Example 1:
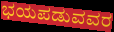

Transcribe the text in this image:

ಭಯಪಡುವವರ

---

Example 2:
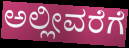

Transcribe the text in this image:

ಅಲ್ಲೀವರೆಗೆ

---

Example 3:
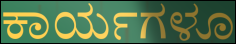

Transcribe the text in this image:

ಕಾರ್ಯಗಳೂ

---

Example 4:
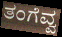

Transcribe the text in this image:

ತಂಗೆವ್ವ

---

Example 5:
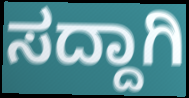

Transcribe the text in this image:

ಸದ್ದಾಗಿ